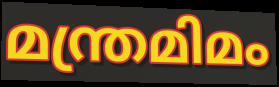
മന്ത്രമിമം